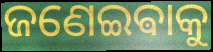
ଜଣେଇଵାକୁ